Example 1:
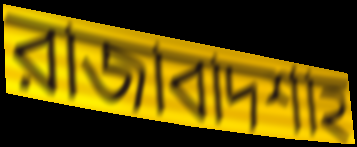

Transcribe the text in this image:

রাজাবাদশাহ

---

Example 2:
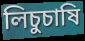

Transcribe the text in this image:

লিচুচাষি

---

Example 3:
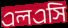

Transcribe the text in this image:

এলএসি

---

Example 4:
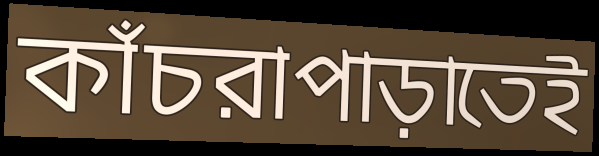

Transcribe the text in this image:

কাঁচরাপাড়াতেই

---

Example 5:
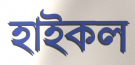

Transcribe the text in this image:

হাইকল